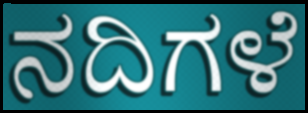
ನದಿಗಳೆ